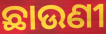
ଛାଉଣୀ